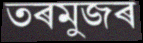
তৰমুজৰ